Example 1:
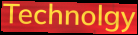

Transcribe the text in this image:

Technolgy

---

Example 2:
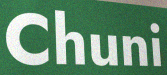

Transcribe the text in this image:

Chuni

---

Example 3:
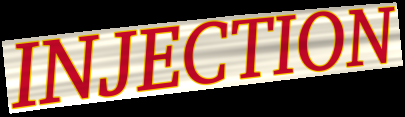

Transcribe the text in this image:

INJECTION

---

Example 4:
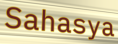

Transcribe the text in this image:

Sahasya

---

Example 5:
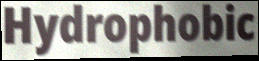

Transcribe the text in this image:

Hydrophobic